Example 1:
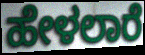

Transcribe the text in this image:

ಹೇಳಲಾರೆ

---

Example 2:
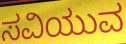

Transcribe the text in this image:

ಸವಿಯುವ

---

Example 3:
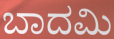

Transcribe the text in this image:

ಬಾದಮಿ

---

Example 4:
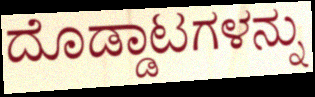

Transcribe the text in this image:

ದೊಡ್ಡಾಟಗಳನ್ನು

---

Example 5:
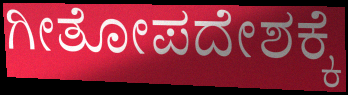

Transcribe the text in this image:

ಗೀತೋಪದೇಶಕ್ಕೆ